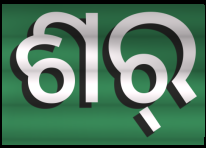
ଶର୍